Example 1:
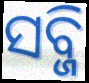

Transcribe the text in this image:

ସବ୍ଜି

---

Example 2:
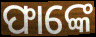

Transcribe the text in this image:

ଫାଙ୍କେ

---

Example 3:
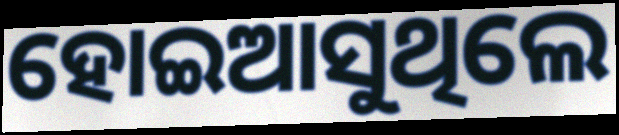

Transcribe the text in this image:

ହୋଇଆସୁଥିଲେ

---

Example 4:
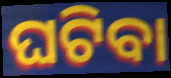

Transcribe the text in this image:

ଘଟିବା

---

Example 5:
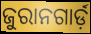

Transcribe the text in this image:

ଜୁରାନଗାର୍ଡ଼